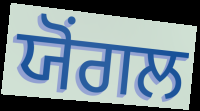
ਯੋਂਗਲ